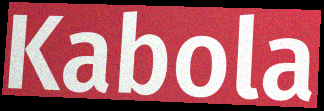
Kabola